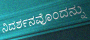
ನಿದರ್ಶನವೊಂದನ್ನು